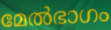
മേൽഭാഗം